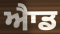
ਐਾਡ